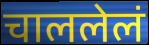
चाललेलं